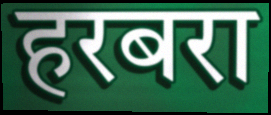
हरबरा